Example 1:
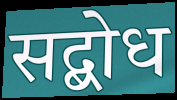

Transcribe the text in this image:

सद्बोध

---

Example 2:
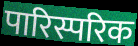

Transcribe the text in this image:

पारिस्परिक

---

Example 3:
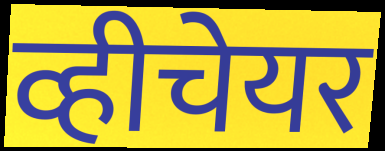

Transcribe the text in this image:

व्हीचेयर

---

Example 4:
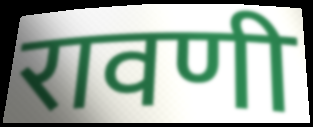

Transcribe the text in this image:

रावणी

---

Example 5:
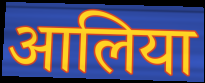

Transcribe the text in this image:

आलिया